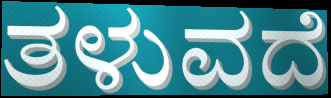
ತಳುವದೆ